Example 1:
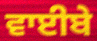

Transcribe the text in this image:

ਵਾਈਬੇ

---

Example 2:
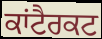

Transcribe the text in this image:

ਕਾਂਟੈਰਕਟ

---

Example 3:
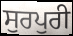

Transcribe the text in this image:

ਸੁਰਪੁਰੀ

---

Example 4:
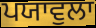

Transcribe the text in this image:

ਪਯਾਵੁਲਾ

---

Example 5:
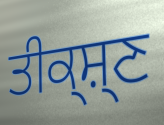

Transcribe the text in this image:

ਤੀਕ੍ਸ਼੍ਣ